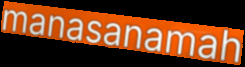
manasanamah